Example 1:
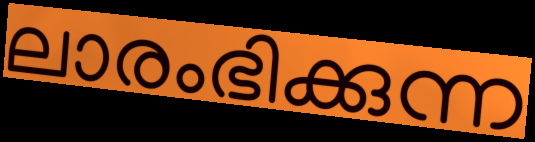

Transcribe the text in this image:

ലാരംഭിക്കുന്ന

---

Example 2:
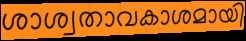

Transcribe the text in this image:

ശാശ്വതാവകാശമായി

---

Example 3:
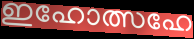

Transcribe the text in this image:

ഇഹോത്സഹേ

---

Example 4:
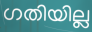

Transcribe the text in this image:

ഗതിയില്ല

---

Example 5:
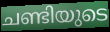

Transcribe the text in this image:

ചണ്ടിയുടെ